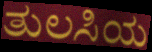
ತುಲಸಿಯ